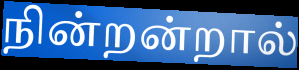
நின்றன்றால்